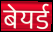
बेयर्ड